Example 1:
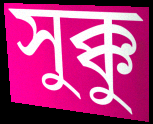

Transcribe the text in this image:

সুক্কু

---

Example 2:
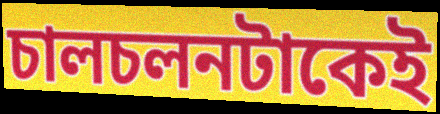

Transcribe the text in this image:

চালচলনটাকেই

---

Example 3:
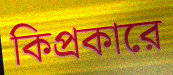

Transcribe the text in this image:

কিপ্রকারে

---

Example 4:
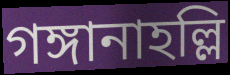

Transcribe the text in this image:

গঙ্গানাহল্লি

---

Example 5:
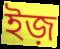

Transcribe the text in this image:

ইজ়